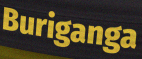
Buriganga